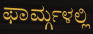
ಫಾರ್ಮ್ಗಳಲ್ಲಿ